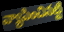
వ్యాపించినట్టి